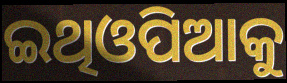
ଇଥିଓପିଆକୁ